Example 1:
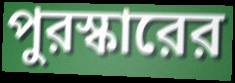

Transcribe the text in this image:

পুরস্কারের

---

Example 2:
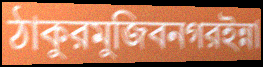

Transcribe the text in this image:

ঠাকুরমুজিবনগরইন্না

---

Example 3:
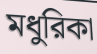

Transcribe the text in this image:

মধুরিকা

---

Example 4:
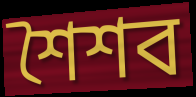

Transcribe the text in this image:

শৈশব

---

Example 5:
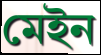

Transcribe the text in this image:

মেইন